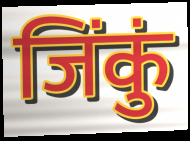
जिंकुं